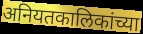
अनियतकालिकांच्या